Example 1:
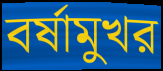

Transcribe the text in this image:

বর্ষামুখর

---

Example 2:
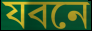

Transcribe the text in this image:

যবনে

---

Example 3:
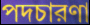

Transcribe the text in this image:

পদচারণা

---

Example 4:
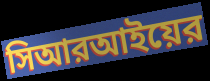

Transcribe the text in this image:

সিআরআইয়ের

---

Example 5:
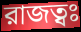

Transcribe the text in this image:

রাজত্বঃ